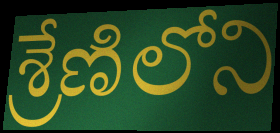
శ్రేణిలోని